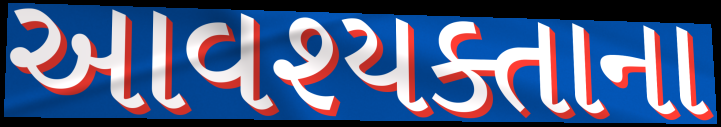
આવશ્યક્તાના